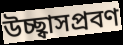
উচ্ছ্বাসপ্রবণ